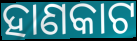
ହାଣକାଟ